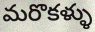
మరొకళ్ళు